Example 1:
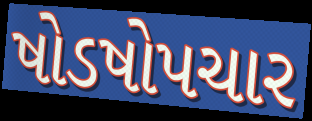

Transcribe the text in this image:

ષોડષોપચાર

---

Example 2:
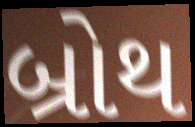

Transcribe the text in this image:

બ્રોથ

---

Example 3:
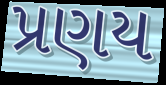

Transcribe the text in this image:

પ્રણય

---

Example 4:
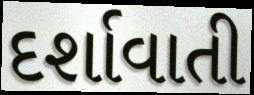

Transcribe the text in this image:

દર્શાવાતી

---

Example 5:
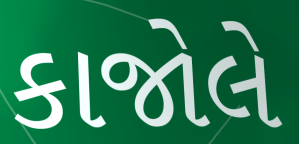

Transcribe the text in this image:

કાજોલે